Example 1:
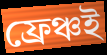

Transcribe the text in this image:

ফ্রেঞ্চই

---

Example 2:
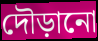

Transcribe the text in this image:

দৌড়ানো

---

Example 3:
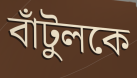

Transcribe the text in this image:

বাঁটুলকে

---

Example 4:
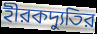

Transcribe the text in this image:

হীরকদ্যুতির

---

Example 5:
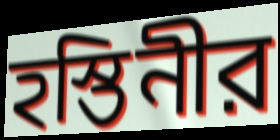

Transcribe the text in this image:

হস্তিনীর